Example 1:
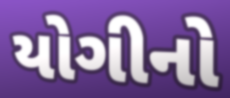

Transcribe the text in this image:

યોગીનો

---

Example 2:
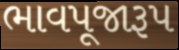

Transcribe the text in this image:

ભાવપૂજારૂપ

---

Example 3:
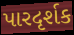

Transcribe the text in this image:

પારદૃર્શક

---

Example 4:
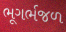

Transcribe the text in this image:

ભૂગર્ભજળ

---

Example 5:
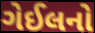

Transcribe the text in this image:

ગેઈલનો